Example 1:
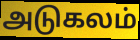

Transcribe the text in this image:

அடுகலம்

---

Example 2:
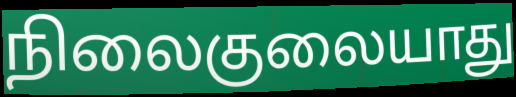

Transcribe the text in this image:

நிலைகுலையாது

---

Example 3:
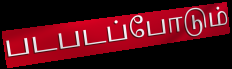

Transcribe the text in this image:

படபடப்போடும்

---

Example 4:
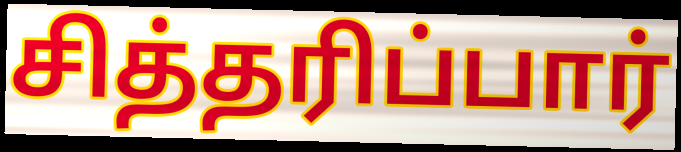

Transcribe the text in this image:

சித்தரிப்பார்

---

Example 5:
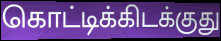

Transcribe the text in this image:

கொட்டிக்கிடக்குது